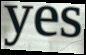
yes